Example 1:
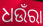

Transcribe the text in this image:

ଧଉଁରା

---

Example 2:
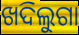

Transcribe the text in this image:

ଖଦିଲୁଗା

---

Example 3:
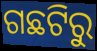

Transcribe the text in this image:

ଗଛଟିରୁ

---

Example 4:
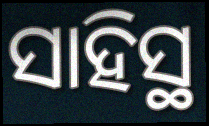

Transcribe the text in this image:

ସାହିସ୍ଥ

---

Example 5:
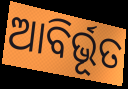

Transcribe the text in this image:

ଆବିର୍ଭୂତ